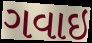
ગવાઇ